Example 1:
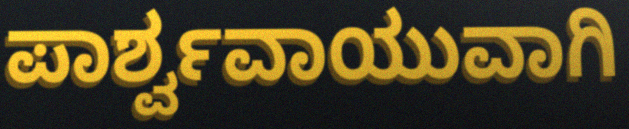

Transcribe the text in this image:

ಪಾರ್ಶ್ವವಾಯುವಾಗಿ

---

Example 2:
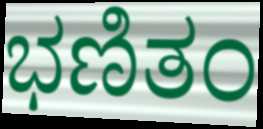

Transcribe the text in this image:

ಭಣಿತಂ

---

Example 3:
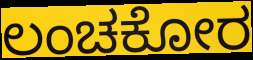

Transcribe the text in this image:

ಲಂಚಕೋರ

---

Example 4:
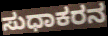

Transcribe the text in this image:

ಸುಧಾಕರನ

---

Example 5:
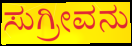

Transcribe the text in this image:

ಸುಗ್ರೀವನು